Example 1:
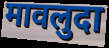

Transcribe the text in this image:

मावलुदा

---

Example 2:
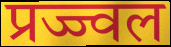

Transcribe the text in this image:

प्रज्ज्वल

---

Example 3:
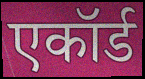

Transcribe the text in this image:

एकॉर्ड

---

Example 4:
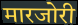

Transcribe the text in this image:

मारजोरी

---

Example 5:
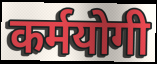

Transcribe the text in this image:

कर्मयोगी